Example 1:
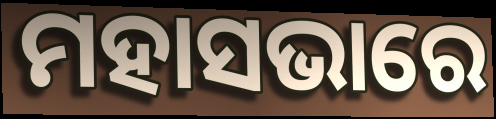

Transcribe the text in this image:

ମହାସଭାରେ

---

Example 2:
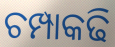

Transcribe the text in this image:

ଚମ୍ପାକଢି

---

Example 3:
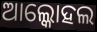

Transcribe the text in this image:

ଆଲ୍କୋହଲ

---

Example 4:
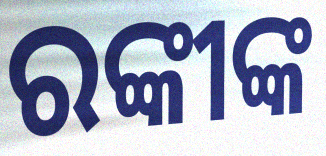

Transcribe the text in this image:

ରଙ୍କୀଙ୍କ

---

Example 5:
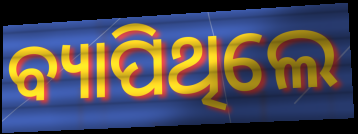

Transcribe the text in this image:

ବ୍ୟାପିଥିଲେ